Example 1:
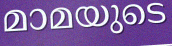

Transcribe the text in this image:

മാമയുടെ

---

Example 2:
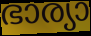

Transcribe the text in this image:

ഭാര്യാ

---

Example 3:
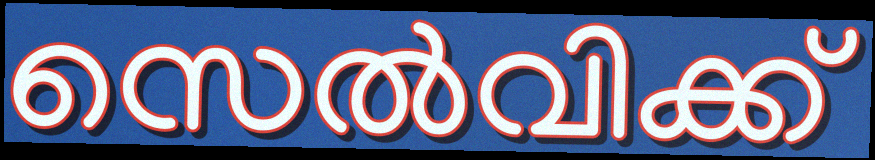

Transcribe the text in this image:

സെൽവിക്ക്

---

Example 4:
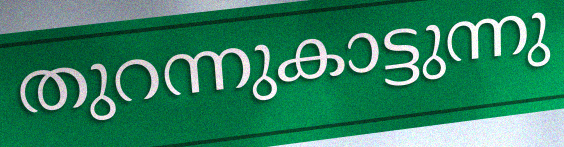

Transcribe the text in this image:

തുറന്നുകാട്ടുന്നു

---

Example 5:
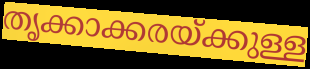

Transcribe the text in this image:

തൃക്കാക്കരയ്ക്കുള്ള